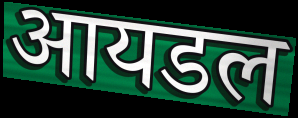
आयडल